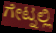
ಗೇಟ್ನಲ್ಲಿ